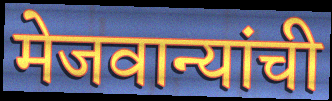
मेजवान्यांची